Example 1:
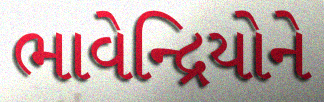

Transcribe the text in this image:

ભાવેન્દ્રિયોને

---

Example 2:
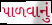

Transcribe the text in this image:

પાળવાનું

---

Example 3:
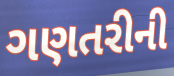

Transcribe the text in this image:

ગણતરીની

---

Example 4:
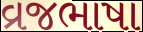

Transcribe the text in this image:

વ્રજભાષા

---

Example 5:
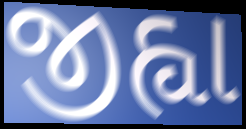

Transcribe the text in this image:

જીહ્વા